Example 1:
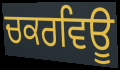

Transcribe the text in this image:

ਚਕਰਵਿਊ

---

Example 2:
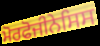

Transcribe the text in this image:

ਮੋਰਫੋਜੀਨੇਸਿਸ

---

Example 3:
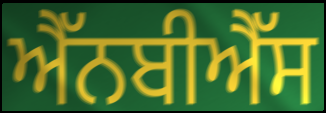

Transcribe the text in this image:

ਐੱਨਬੀਐੱਸ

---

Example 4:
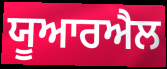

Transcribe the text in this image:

ਯੂਆਰਐਲ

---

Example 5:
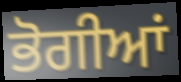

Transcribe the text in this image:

ਭੋਗੀਆਂ